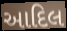
આદિલ